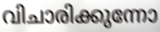
വിചാരിക്കുന്നോ